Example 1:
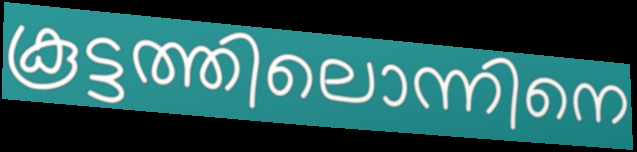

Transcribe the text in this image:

കൂട്ടത്തിലൊന്നിനെ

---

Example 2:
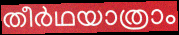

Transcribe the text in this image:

തീർഥയാത്രാം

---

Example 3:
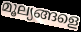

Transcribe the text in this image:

മൂല്യങ്ങളെ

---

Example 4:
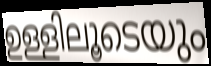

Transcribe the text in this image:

ഉള്ളിലൂടെയും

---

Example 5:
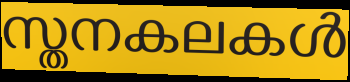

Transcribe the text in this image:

സ്തനകലകൾ